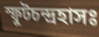
স্ফুটচন্দ্রহাসঃ